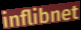
inflibnet